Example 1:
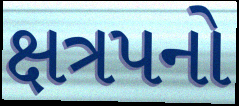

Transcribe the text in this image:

ક્ષત્રપનો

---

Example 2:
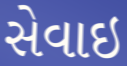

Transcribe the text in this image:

સેવાઇ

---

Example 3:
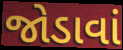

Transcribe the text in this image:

જોડાવાં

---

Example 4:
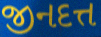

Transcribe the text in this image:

જીનદત્ત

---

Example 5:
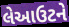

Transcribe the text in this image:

લેઆઉટને